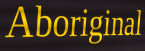
Aboriginal